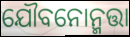
ଯୌବନୋନ୍ମତ୍ତା